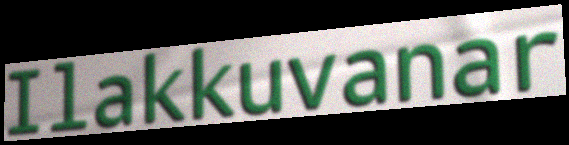
Ilakkuvanar